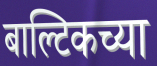
बाल्टिकच्या